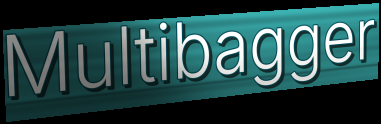
Multibagger